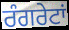
ਰੰਗਰੇਟਾਂ